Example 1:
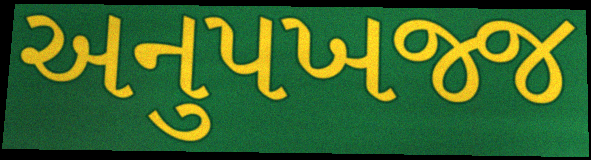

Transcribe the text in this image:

અનુપખજ્જ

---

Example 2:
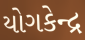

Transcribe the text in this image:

યોગકેન્દ્ર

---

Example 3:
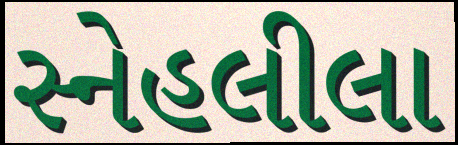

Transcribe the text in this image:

સ્નેહલીલા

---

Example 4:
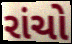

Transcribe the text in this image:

રાંચો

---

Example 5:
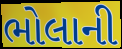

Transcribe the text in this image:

ભોલાની